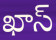
ఖాస్